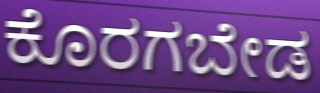
ಕೊರಗಬೇಡ